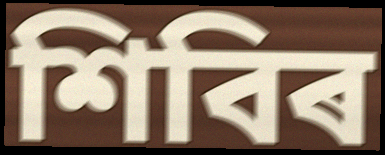
শিবিৰ